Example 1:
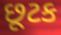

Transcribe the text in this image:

છૂટક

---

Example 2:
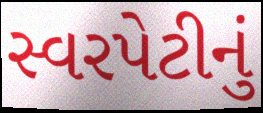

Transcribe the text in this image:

સ્વરપેટીનું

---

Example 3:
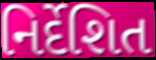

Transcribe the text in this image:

નિર્દેશિત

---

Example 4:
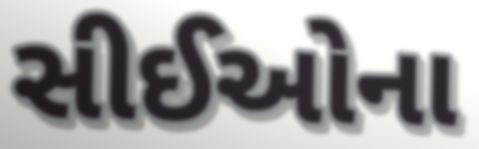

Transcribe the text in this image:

સીઈઓના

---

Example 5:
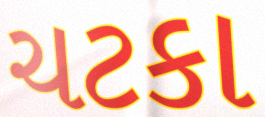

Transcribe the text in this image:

ચટકા